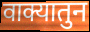
वाक्यातुन